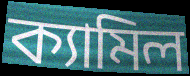
ক্যামিল